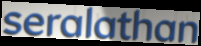
seralathan